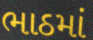
ભાઠમાં